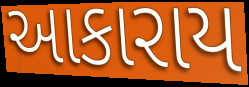
આકારાય